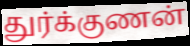
துர்க்குணன்